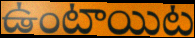
ఉంటాయిట